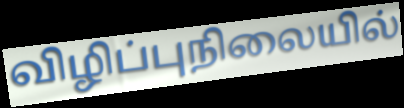
விழிப்புநிலையில்